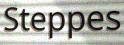
Steppes